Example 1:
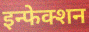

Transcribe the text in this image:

इन्फेक्शन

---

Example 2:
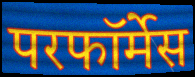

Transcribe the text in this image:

परफॉर्मेस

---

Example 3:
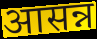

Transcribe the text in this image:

आसन्न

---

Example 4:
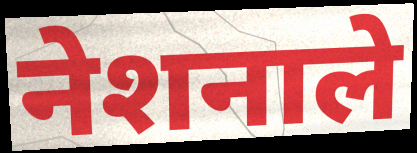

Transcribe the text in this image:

नेशनाले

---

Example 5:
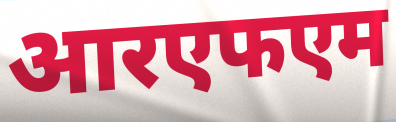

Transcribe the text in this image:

आरएफएम